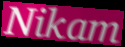
Nikam